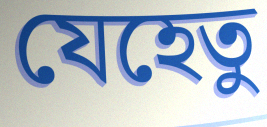
যেহেতু